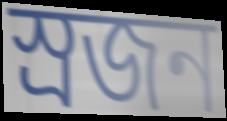
স্ৰজন